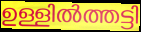
ഉള്ളിൽത്തട്ടി